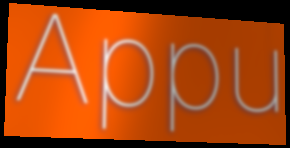
Appu